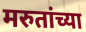
मरुतांच्या